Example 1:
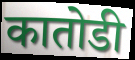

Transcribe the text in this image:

कातोडी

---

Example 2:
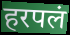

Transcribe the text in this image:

हरपलं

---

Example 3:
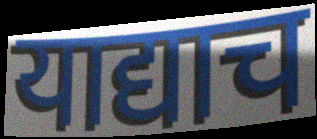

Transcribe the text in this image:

याद्याच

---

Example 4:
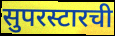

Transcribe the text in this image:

सुपरस्टारची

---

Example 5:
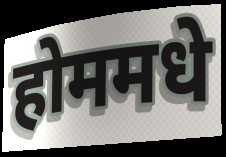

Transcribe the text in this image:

होममधे